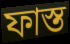
ফাস্ত